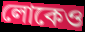
লোকেও